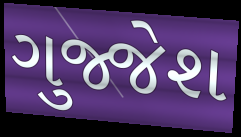
ગુજ્જેશ